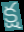
క్ష